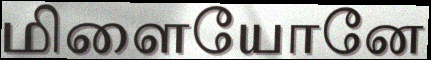
மிளையோனே